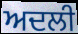
ਅਦਲੀ